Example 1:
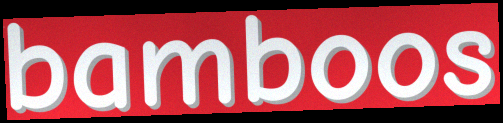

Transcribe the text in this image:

bamboos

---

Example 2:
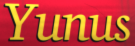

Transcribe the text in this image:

Yunus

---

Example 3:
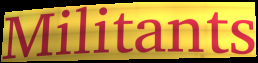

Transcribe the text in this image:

Militants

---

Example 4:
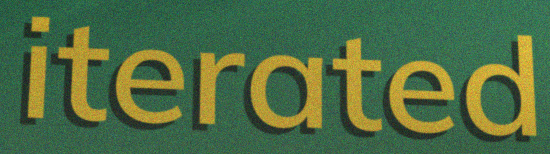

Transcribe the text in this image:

iterated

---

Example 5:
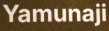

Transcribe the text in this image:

Yamunaji